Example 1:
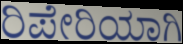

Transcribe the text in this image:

ರಿಪೇರಿಯಾಗಿ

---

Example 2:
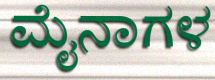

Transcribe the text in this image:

ಮೈನಾಗಳ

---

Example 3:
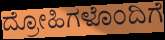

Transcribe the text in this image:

ದ್ರೋಹಿಗಳೊಂದಿಗೆ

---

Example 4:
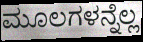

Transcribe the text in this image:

ಮೂಲಗಳನ್ನೆಲ್ಲ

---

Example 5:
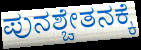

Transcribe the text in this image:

ಪುನಶ್ಚೇತನಕ್ಕೆ